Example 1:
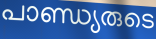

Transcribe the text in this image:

പാണ്ഡ്യരുടെ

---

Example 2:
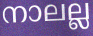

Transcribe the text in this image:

നാലല്ല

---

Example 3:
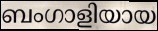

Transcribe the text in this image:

ബംഗാളിയായ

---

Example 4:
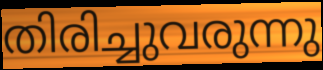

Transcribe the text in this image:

തിരിച്ചുവരുന്നു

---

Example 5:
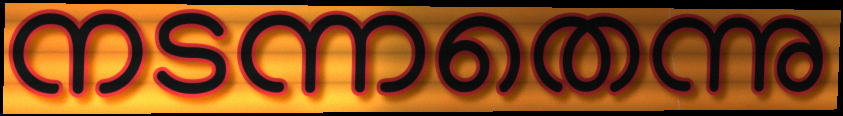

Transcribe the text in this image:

നടന്നതെന്നു